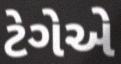
ટેગેએ